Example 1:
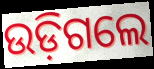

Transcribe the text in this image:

ଉଡ଼ିଗଲେ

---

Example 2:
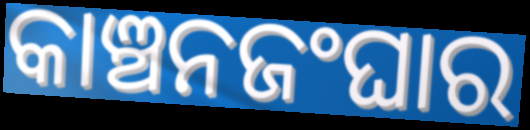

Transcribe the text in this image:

କାଞ୍ଚନଜଂଘାର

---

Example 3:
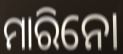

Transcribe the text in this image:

ମାରିନୋ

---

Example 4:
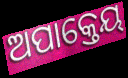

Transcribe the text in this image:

ଅପାକ୍ତେୟ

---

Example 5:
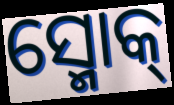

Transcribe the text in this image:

ସ୍ମୋକ୍